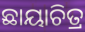
ଛାୟାଚିତ୍ର